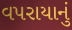
વપરાયાનું